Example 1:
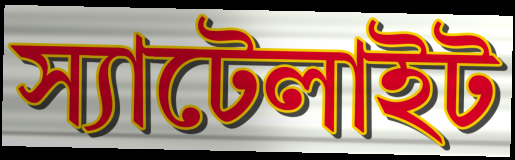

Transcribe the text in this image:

স্যাটেলাইট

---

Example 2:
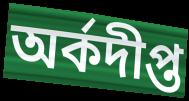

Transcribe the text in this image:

অর্কদীপ্ত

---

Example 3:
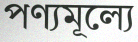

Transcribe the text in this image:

পণ্যমূল্যে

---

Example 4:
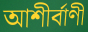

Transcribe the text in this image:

আশীর্বাণী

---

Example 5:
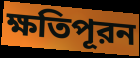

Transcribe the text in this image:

ক্ষতিপূরন